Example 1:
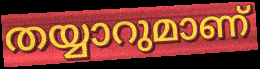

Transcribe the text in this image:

തയ്യാറുമാണ്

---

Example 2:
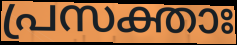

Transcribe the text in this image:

പ്രസക്താഃ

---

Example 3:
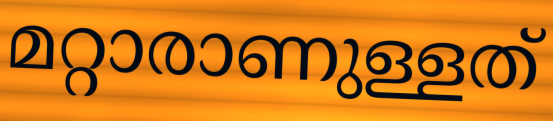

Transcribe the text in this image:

മറ്റാരാണുള്ളത്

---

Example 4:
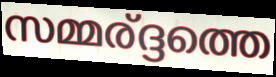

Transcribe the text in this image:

സമ്മര്ദ്ദത്തെ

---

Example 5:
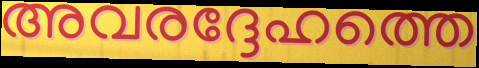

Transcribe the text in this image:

അവരദ്ദേഹത്തെ